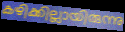
കഴിക്കില്ലായിരുന്നു